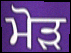
ਮੋਡ਼